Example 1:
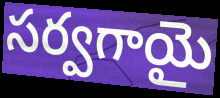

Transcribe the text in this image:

సర్వగాయై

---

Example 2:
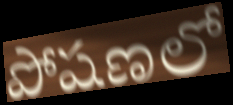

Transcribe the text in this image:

పోషణలో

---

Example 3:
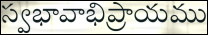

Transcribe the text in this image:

స్వభావాభిప్రాయము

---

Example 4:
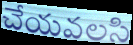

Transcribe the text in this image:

చేయవలసి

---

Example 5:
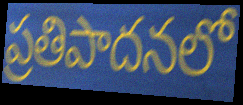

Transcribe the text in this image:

ప్రతిపాదనలో